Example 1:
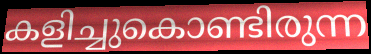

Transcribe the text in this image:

കളിച്ചുകൊണ്ടിരുന്ന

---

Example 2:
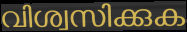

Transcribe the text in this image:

വിശ്വസിക്കുക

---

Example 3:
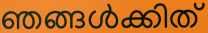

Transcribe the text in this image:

ഞങ്ങൾക്കിത്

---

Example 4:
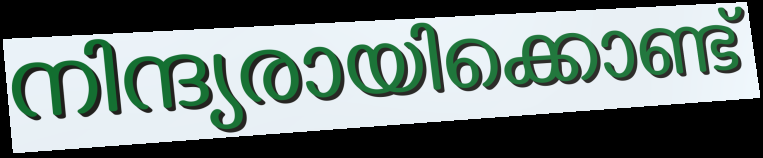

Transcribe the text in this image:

നിന്ദ്യരായിക്കൊണ്ട്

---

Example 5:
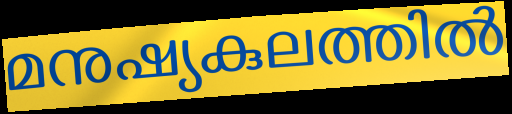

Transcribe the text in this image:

മനുഷ്യകുലത്തിൽ